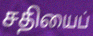
சதியைப்